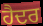
ਹੈਦਰ